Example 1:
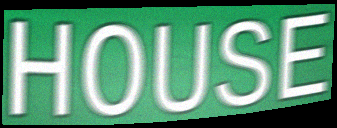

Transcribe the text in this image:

HOUSE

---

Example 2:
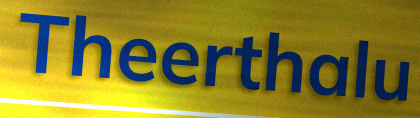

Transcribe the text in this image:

Theerthalu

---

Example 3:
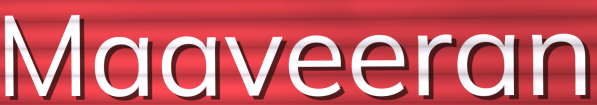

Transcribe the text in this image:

Maaveeran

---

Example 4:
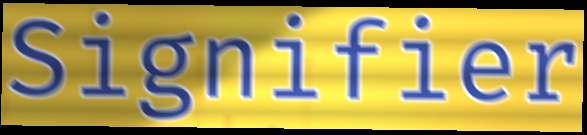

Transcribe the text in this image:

Signifier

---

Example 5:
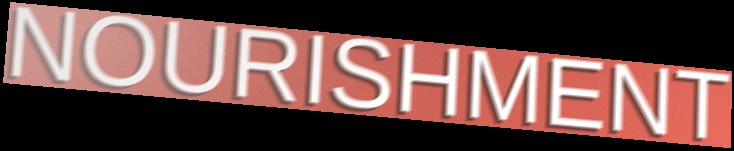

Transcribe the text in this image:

NOURISHMENT